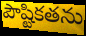
పౌష్టికతను